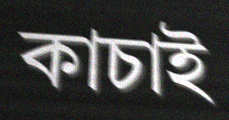
কাচাই